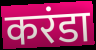
करंडा